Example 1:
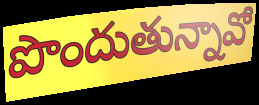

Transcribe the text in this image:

పొందుతున్నావో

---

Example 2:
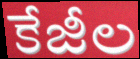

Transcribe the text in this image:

కేజీల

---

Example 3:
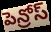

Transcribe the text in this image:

పెన్రోస్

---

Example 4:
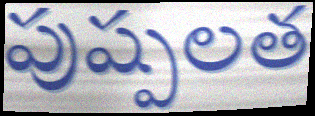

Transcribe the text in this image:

పుష్పలత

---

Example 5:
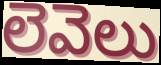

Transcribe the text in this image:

లెవెలు